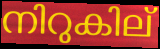
നിറുകില്